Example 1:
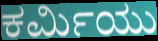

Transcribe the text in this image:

ಕರ್ಮಿಯು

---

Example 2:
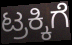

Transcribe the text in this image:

ಟ್ರಕ್ಕಿಗೆ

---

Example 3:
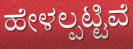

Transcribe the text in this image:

ಹೇಳಲ್ಪಟ್ಟಿವೆ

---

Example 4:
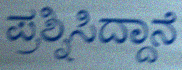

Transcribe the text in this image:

ಪ್ರಶ್ನಿಸಿದ್ದಾನೆ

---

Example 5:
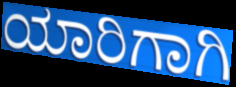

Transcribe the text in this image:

ಯಾರಿಗಾಗಿ